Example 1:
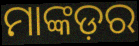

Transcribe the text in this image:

ମାଙ୍କଡ଼ର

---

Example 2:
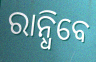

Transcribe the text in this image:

ରାନ୍ଧିବେ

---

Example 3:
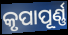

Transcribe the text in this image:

କୃପାପୂର୍ଣ୍ଣ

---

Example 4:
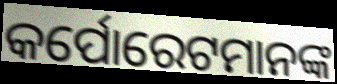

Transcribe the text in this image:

କର୍ପୋରେଟମାନଙ୍କ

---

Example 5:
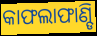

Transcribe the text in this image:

କାଫଲାଫାଣ୍ଡି